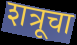
शत्रूचा